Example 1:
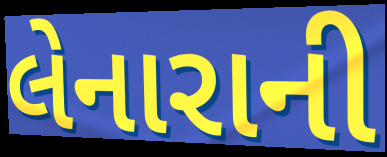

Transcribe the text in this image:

લેનારાની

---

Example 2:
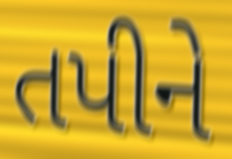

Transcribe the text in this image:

તપીને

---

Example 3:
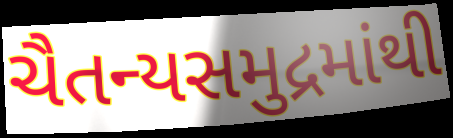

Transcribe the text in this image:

ચૈતન્યસમુદ્રમાંથી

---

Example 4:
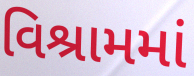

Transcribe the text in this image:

વિશ્રામમાં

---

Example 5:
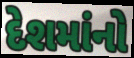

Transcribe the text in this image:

દેશમાંનો